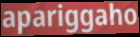
apariggaho